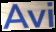
Avi